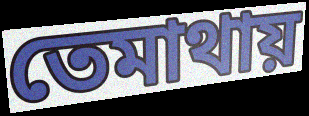
তেমাথায়